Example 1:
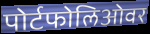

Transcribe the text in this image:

पोर्टफोलिओवर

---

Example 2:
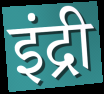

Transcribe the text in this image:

इंद्री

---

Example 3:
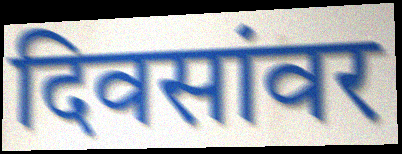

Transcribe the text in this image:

दिवसांवर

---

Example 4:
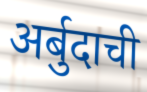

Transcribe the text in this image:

अर्बुदाची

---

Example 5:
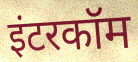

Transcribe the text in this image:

इंटरकॉम